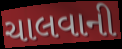
ચાલવાની